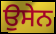
ਉਸੇਨ